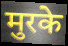
मुरके